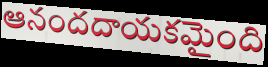
ఆనందదాయకమైంది